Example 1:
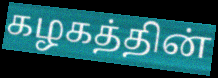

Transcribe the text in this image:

கழகத்தின்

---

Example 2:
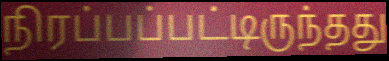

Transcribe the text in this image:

நிரப்பப்பட்டிருந்தது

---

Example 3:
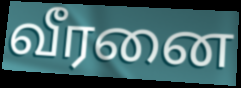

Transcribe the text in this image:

வீரனை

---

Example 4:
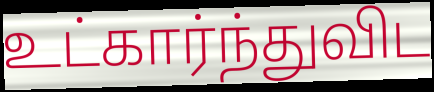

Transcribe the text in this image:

உட்கார்ந்துவிட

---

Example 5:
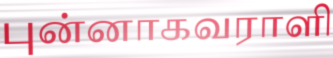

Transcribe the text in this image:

புன்னாகவராளி